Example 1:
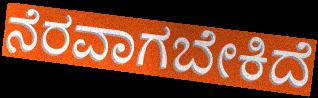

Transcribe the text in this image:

ನೆರವಾಗಬೇಕಿದೆ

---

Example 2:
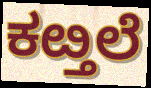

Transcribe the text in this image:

ಕೞ್ತಲೆ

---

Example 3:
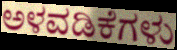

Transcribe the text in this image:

ಅಳವಡಿಕೆಗಳು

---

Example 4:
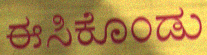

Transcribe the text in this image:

ಈಸಿಕೊಂಡು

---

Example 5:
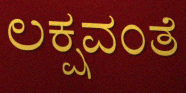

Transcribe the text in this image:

ಲಕ್ಷವಂತೆ